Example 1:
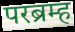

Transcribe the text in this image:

परब्रम्ह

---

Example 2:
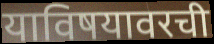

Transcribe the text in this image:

याविषयावरची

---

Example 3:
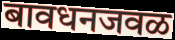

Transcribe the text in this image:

बावधनजवळ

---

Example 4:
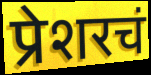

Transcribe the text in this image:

प्रेशरचं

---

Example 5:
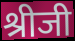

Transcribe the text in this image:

श्रीजी